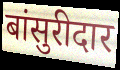
बांसुरीदार